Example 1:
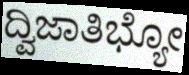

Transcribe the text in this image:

ದ್ವಿಜಾತಿಭ್ಯೋ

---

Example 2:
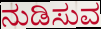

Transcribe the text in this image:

ನುಡಿಸುವ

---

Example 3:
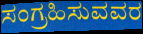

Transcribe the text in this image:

ಸಂಗ್ರಹಿಸುವವರ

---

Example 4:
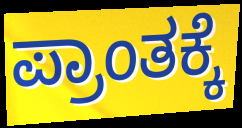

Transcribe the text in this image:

ಪ್ರಾಂತಕ್ಕೆ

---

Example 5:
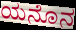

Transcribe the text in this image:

ಯನೊನ